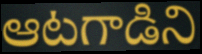
ఆటగాడిని